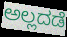
ಅಲ್ಲದಡೆ